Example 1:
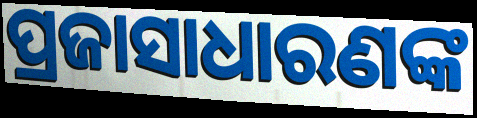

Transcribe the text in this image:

ପ୍ରଜାସାଧାରଣଙ୍କ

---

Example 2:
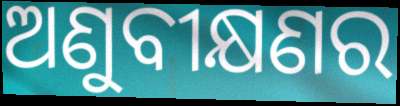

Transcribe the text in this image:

ଅଣୁବୀକ୍ଷଣର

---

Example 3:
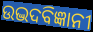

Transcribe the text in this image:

ଉଦ୍ଭଦବିଜ୍ଞାନୀ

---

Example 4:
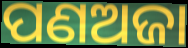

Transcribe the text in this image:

ପଣଅଜା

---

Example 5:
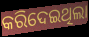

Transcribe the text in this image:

କରିଦେଇଥିଲା